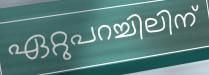
ഏറ്റുപറച്ചിലിന്